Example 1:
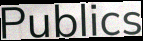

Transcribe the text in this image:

Publics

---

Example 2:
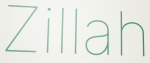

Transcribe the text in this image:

Zillah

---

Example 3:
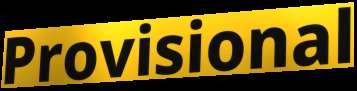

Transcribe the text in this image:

Provisional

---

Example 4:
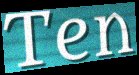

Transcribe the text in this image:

Ten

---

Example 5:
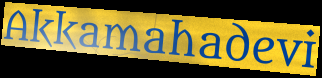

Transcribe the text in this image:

Akkamahadevi